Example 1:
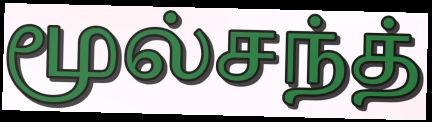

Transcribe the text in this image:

மூல்சந்த்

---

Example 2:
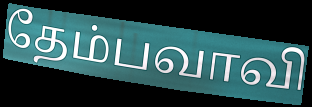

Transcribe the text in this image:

தேம்பவாவி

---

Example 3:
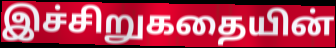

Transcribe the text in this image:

இச்சிறுகதையின்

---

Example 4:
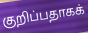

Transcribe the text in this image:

குறிப்பதாகக்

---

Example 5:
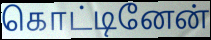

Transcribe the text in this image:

கொட்டினேன்